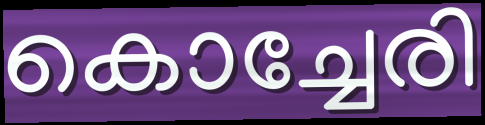
കൊച്ചേരി